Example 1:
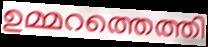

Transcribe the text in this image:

ഉമ്മറത്തെത്തി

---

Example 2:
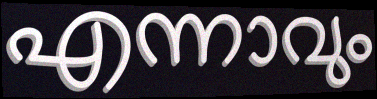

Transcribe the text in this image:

എന്നാവും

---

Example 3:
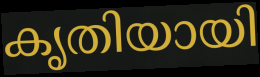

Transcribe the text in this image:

കൃതിയായി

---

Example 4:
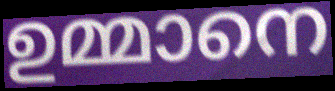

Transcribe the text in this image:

ഉമ്മാനെ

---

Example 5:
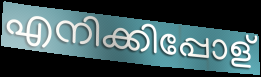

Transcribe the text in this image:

എനിക്കിപ്പോള്